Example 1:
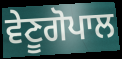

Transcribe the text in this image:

ਵੇਣੂਗੋਪਾਲ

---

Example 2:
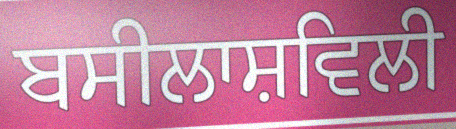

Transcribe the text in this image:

ਬਸੀਲਾਸ਼ਵਿਲੀ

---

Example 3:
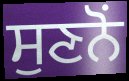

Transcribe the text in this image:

ਸੁਣਨੋਂ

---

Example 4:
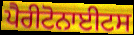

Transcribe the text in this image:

ਪੈਰੀਟੋਨਾਈਟਸ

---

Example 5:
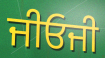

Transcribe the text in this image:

ਜੀਓਜੀ